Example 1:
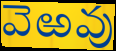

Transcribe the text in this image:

వెఱవు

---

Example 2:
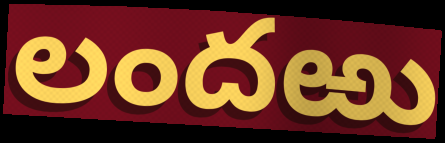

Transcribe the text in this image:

లందఱు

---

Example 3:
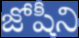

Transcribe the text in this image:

జోషీని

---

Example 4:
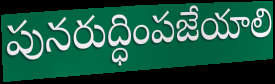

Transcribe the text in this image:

పునరుద్ధింపజేయాలి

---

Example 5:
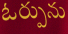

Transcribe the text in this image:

ఓర్పును